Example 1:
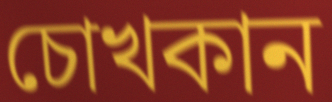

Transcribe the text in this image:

চোখকান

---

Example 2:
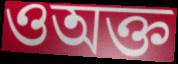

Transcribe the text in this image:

ওঅক্ত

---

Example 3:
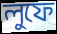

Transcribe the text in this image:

লুফে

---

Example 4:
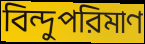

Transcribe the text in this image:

বিন্দুপরিমাণ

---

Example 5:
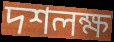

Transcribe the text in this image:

দশলক্ষ